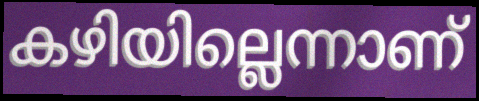
കഴിയില്ലെന്നാണ്